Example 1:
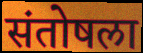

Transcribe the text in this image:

संतोषला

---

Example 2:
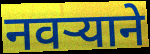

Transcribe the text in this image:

नवर्‍याने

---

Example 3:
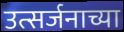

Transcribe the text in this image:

उत्सर्जनाच्या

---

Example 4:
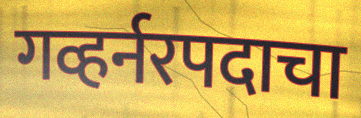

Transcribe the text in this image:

गव्हर्नरपदाचा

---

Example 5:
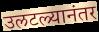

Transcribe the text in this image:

उलटल्यानंतर